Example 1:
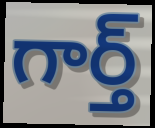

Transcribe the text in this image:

గార్త్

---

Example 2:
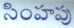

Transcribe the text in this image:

సింహపు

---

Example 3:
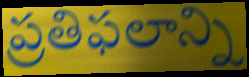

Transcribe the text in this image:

ప్రతిఫలాన్ని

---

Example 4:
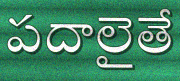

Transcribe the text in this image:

పదాలైతే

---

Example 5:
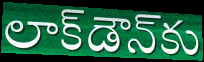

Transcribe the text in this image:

లాక్‌డౌన్‌కు